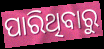
ପାରିଥିବାରୁ